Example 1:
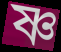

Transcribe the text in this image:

ষ্ণ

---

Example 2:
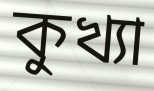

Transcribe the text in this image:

কুখ্যা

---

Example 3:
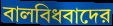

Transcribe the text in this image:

বালবিধবাদের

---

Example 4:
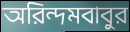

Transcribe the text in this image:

অরিন্দমবাবুর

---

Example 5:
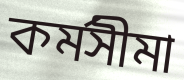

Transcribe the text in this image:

কর্মসীমা